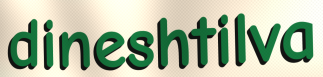
dineshtilva